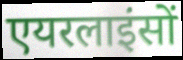
एयरलाइंसों